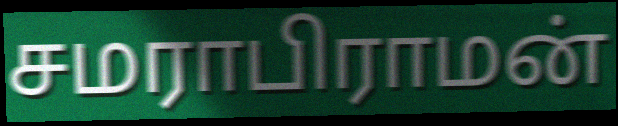
சமராபிராமன்